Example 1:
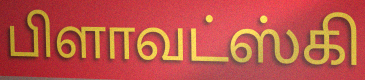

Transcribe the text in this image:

பிளாவட்ஸ்கி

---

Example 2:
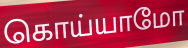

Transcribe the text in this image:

கொய்யாமோ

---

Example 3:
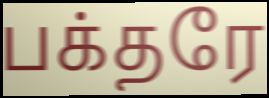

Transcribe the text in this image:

பக்தரே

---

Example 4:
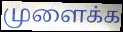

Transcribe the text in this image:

முளைக்க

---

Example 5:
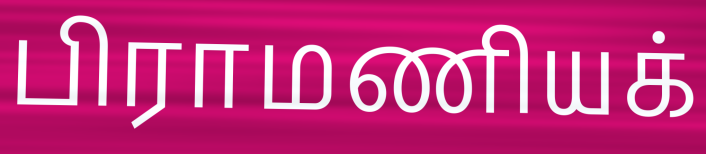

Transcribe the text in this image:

பிராமணியக்